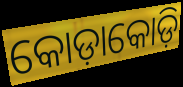
କୋଡ଼ାକୋଡ଼ି